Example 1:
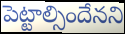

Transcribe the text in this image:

పెట్టాల్సిందేనని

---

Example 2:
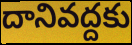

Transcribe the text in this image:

దానివద్దకు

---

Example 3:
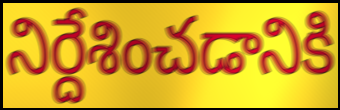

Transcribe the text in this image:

నిర్దేశించడానికి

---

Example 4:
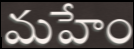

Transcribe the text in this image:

మహేం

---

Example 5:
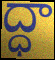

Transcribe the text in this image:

ద్ధా